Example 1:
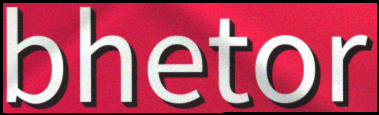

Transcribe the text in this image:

bhetor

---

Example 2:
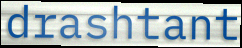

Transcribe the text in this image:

drashtant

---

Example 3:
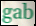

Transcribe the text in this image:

gab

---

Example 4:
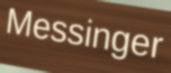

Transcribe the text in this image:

Messinger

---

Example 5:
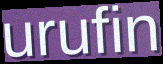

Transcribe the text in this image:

urufin